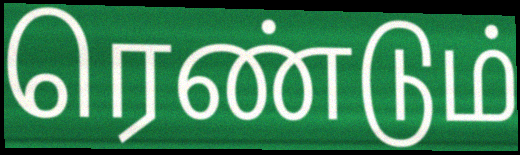
ரெண்டும்